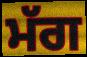
ਮੱਗ